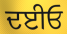
ਦਈਓ